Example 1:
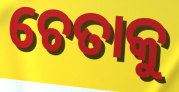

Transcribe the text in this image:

ଚେତାକୁ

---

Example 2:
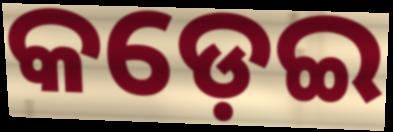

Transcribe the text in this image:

କଡ଼େଇ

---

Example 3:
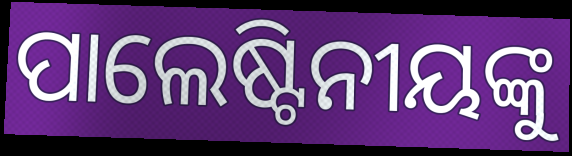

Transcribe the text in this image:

ପାଲେଷ୍ଟିନୀୟଙ୍କୁ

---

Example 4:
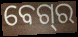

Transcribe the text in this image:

ବେଗ୍‌ର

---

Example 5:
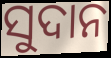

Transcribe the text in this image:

ସୁଦାନ